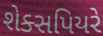
શેક્સપિયરે